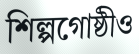
শিল্পগোষ্ঠীও